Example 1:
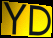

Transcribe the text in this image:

YD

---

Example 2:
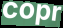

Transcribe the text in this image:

copr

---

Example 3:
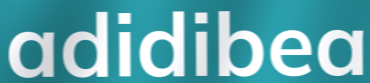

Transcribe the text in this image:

adidibea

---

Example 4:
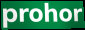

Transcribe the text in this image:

prohor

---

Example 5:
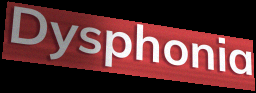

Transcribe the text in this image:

Dysphonia